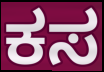
ಕಸ